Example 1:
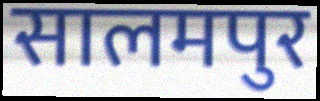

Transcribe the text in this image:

सालमपुर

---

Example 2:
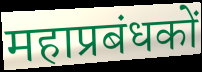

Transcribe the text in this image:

महाप्रबंधकों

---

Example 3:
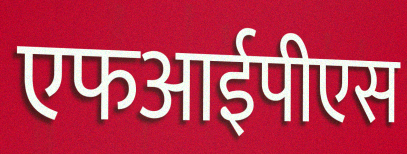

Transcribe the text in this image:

एफआईपीएस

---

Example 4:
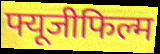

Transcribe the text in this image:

फ्यूजीफिल्म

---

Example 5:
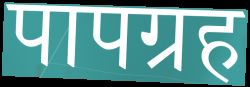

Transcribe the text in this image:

पापग्रह